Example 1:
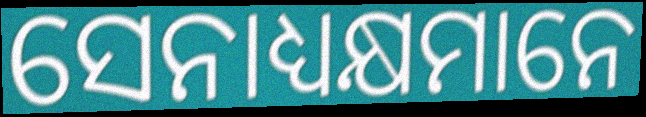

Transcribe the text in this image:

ସେନାଧ୍ୟକ୍ଷମାନେ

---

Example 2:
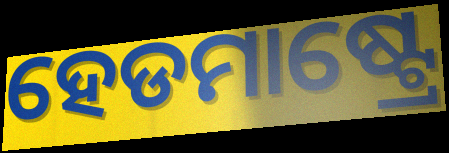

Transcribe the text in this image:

ହେଡମାଷ୍ଟ୍ରେ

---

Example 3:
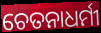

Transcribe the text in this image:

ଚେତନାଧର୍ମୀ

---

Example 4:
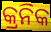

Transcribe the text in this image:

କ୍ରନିକ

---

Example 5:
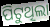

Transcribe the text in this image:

ପିଟୁଥିଲା